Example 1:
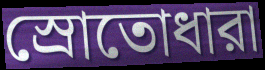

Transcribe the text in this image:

স্রোতোধারা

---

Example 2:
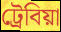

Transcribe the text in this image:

ট্রেবিয়া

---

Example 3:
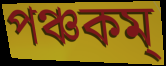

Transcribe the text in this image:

পঞ্চকম্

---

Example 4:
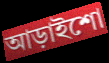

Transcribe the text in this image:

আড়াইশো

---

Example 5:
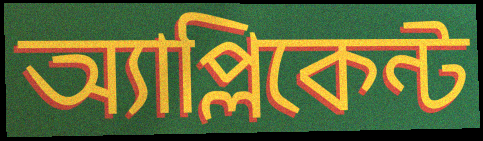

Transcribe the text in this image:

অ্যাপ্লিকেন্ট